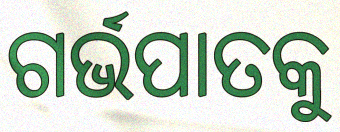
ଗର୍ଭପାତକୁ